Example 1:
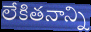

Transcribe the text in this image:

లేకితనాన్ని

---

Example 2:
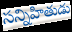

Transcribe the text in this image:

సన్నిహితుడు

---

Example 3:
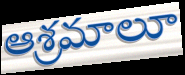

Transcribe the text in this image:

ఆశ్రమాలూ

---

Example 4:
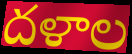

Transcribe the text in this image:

దళాల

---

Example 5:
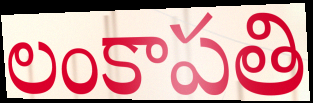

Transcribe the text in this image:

లంకాపతి